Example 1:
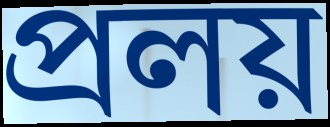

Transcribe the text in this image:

প্রলয়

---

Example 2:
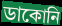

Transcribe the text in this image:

ডাকোনি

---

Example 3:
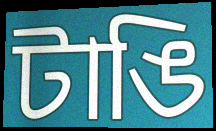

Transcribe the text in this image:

টাঙি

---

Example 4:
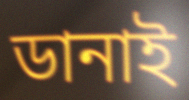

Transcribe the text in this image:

ডানাই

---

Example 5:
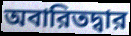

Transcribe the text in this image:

অবারিতদ্বার